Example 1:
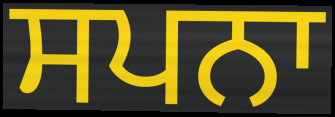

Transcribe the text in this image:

ਸਪਨਾ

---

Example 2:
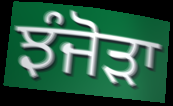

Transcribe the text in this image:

ਝੰਜੋੜਾ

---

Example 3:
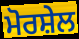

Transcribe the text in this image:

ਮੋਰਸ਼ੇਲ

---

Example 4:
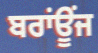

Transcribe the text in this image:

ਬਰਾਂਊਂਜ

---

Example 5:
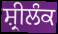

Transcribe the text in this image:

ਸ਼੍ਰੀਲੰਕ